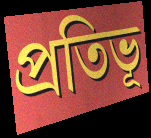
প্ৰতিভূ